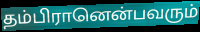
தம்பிரானென்பவரும்